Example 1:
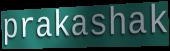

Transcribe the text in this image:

prakashak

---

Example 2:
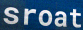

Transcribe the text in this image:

sroat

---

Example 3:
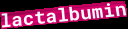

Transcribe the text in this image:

lactalbumin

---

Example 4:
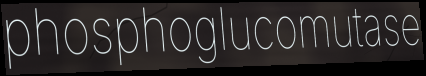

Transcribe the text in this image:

phosphoglucomutase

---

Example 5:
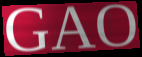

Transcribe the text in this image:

GAO